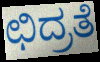
ಛಿದ್ರತೆ